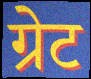
ग्रेट